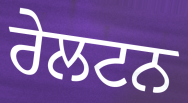
ਰੇਲਟਨ